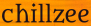
chillzee